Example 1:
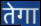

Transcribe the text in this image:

तेगा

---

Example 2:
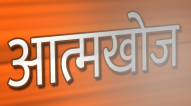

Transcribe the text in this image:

आत्मखोज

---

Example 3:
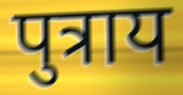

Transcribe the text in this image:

पुत्राय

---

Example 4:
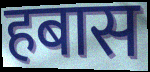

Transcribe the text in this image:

हबास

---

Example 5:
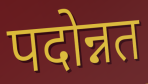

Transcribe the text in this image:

पदोन्नत